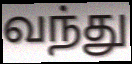
வந்து